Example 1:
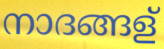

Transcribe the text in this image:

നാദങ്ങള്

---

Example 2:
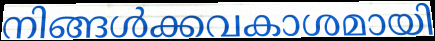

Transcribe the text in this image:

നിങ്ങൾക്കവകാശമായി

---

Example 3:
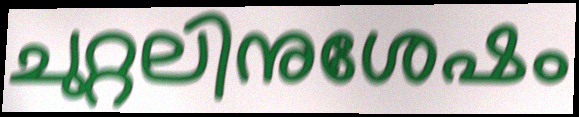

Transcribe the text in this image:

ചുറ്റലിനുശേഷം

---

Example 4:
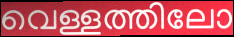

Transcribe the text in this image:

വെള്ളത്തിലോ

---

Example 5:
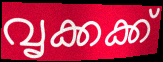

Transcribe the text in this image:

വൃക്കക്ക്